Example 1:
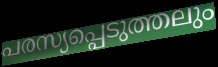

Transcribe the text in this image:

പരസ്യപ്പെടുത്തലും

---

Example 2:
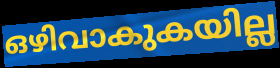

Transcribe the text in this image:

ഒഴിവാകുകയില്ല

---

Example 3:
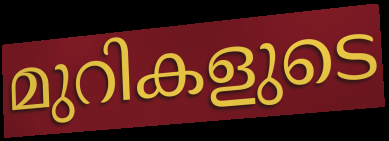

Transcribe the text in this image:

മുറികളുടെ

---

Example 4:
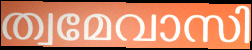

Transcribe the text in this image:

ത്വമേവാസി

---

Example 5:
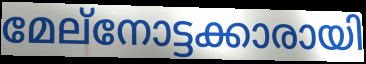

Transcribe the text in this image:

മേല്നോട്ടക്കാരായി